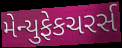
મેન્યુફેકચરર્સ